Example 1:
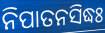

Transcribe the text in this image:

ନିପାତନସିଦ୍ଧଃ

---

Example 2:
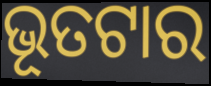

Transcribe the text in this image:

ଭୂତଟାର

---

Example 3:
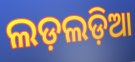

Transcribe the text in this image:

ଲଡ଼ଲଡ଼ିଆ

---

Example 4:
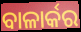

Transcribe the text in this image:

ବାଳାର୍କର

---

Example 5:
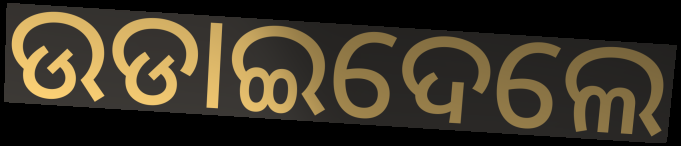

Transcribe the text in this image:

ଉଡାଇଦେଲେ